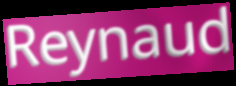
Reynaud